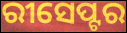
ରୀସେପ୍ଟର